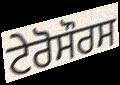
ਟੇਰੋਸੌਰਸ